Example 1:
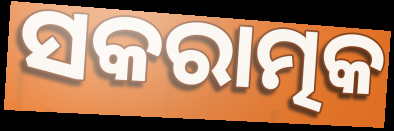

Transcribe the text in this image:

ସକରାତ୍ମକ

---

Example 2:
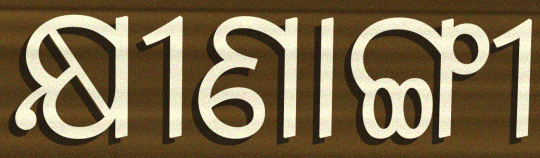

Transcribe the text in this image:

କ୍ଷୀଣାଙ୍ଗୀ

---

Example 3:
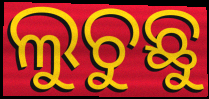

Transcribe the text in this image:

ଲୁଚୁଛୁ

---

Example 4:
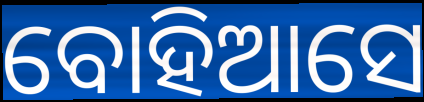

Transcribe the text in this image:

ବୋହିଆସେ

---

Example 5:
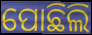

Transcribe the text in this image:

ପୋଛିଲି